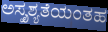
ಅಸ್ಪೃಶ್ಯತೆಯಂತಹ